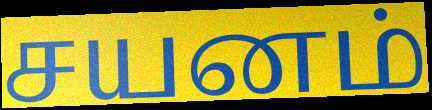
சயனம்